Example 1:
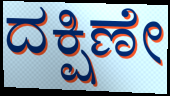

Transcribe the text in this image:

ದಕ್ಷಿಣೇ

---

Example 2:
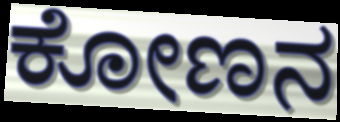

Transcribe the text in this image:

ಕೋಣನ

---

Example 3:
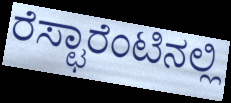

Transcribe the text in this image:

ರೆಸ್ಟಾರೆಂಟಿನಲ್ಲಿ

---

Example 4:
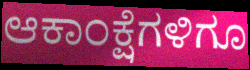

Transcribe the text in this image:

ಆಕಾಂಕ್ಷೆಗಳಿಗೂ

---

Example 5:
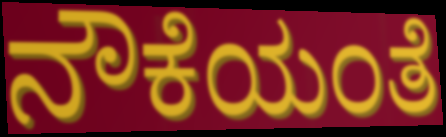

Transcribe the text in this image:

ನೌಕೆಯಂತೆ